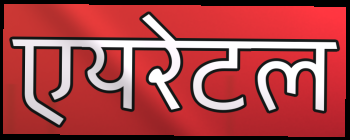
एयरेटल